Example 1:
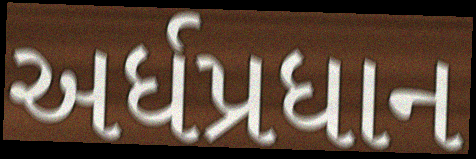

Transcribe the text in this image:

અર્ધપ્રધાન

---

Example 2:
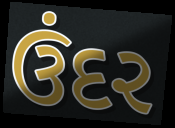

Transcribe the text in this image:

ઉંદર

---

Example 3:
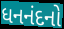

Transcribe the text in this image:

ધનનંદનો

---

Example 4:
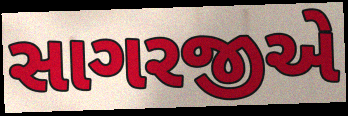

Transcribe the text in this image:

સાગરજીએ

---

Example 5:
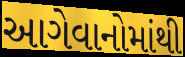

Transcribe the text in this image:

આગેવાનોમાંથી